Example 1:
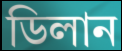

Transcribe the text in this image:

ডিলান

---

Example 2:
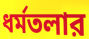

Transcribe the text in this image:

ধর্মতলার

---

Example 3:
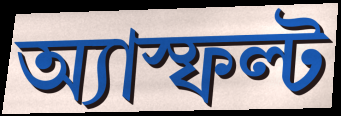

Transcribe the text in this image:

অ্যাস্ফল্ট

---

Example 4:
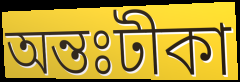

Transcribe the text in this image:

অন্তঃটীকা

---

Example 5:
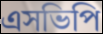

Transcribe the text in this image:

এসভিপি